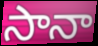
సానా